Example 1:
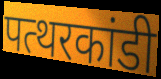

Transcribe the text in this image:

पत्थरकांडी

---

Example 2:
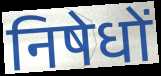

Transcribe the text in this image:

निषेधों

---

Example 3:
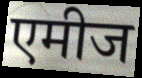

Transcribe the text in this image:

एमीज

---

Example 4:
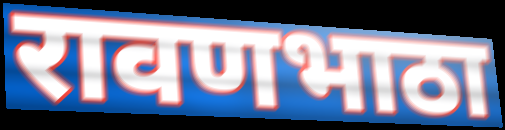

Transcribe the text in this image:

रावणभाठा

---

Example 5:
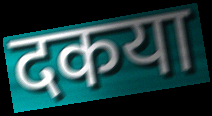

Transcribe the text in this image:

दकया